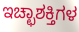
ಇಚ್ಛಾಶಕ್ತಿಗಳ